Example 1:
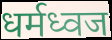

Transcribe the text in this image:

धर्मध्वज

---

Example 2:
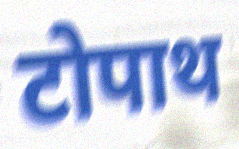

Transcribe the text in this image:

टोपाथ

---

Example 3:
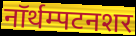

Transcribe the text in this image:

नॉर्थम्पटनशर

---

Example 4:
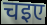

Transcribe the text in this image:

चइए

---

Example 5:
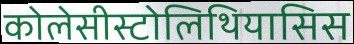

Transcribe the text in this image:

कोलेसीस्टोलिथियासिस